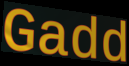
Gadd